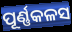
ପୂର୍ଣ୍ଣକଳସ